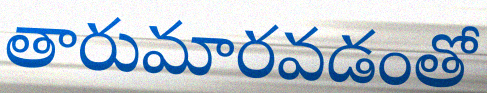
తారుమారవడంతో